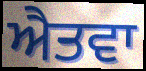
ਐਤਵਾ